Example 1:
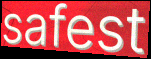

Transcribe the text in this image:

safest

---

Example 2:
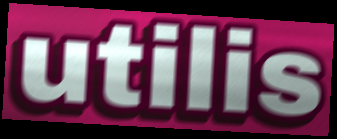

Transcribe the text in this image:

utilis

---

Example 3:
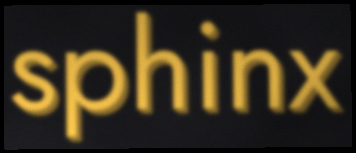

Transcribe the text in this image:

sphinx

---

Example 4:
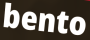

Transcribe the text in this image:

bento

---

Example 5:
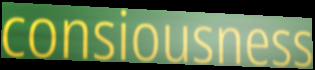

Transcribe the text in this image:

consiousness